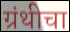
ग्रंथीचा